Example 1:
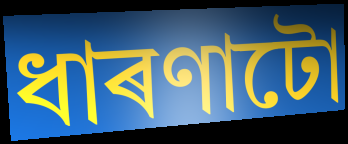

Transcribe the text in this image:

ধাৰণাটো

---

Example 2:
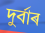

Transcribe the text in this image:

দুৰ্বাৰ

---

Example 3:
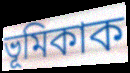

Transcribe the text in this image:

ভূমিকাক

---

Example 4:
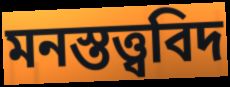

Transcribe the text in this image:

মনস্তত্ত্ববিদ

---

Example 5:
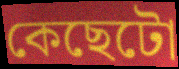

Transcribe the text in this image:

কেছেটো